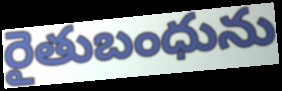
రైతుబంధును